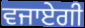
ਵਜਾਏਗੀ